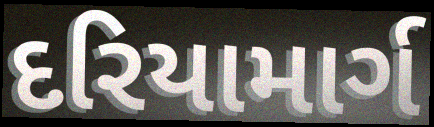
દરિયામાર્ગ